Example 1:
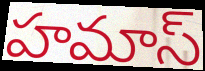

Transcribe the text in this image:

హమాస్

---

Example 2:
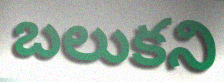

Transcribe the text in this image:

బలుకని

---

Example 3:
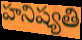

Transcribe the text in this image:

హనిష్యతి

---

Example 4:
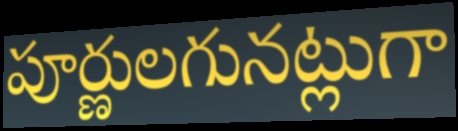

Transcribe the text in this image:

పూర్ణులగునట్లుగా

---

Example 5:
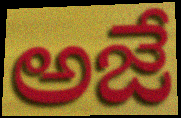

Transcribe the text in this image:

అజే